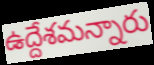
ఉద్దేశమన్నారు